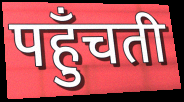
पहुँचती